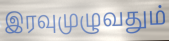
இரவுமுழுவதும்